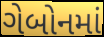
ગેબોનમાં